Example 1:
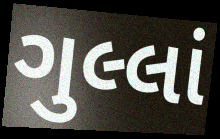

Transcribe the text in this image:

ગુલ્લાં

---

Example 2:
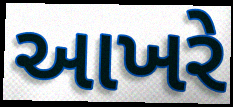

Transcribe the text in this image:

આખરે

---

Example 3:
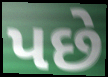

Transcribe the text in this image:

પછે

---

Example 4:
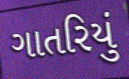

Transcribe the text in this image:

ગાતરિયું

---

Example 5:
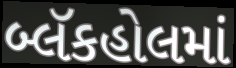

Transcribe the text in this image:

બ્લૅકહોલમાં